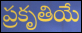
ప్రకృతియే